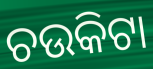
ଚଉକିଟା